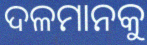
ଦଳମାନକୁ